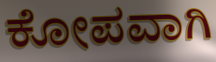
ಕೋಪವಾಗಿ